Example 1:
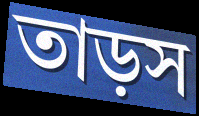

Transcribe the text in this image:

তাড়স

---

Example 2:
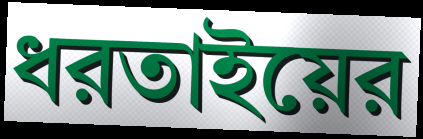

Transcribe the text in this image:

ধরতাইয়ের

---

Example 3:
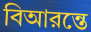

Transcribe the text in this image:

বিআরন্তে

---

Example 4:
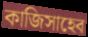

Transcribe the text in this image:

কাজিসাহেব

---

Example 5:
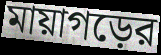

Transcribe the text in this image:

মায়াগড়ের